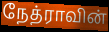
நேத்ராவின்